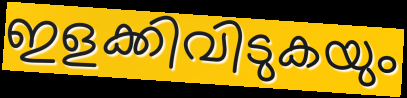
ഇളക്കിവിടുകയും